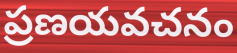
ప్రణయవచనం